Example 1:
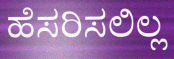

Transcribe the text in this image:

ಹೆಸರಿಸಲಿಲ್ಲ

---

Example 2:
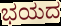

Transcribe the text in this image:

ಭಯದ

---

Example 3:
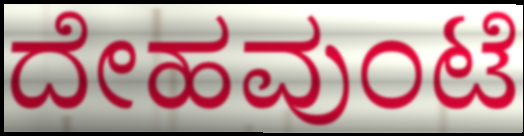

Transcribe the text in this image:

ದೇಹವುಂಟೆ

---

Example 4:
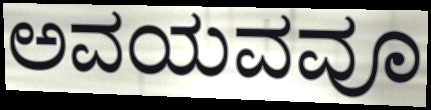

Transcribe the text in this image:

ಅವಯವವೂ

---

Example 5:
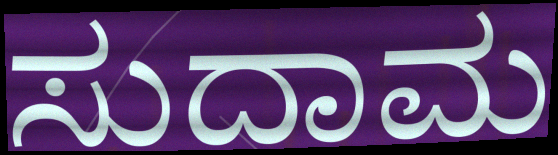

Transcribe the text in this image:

ಸುದಾಮ